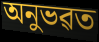
অনুভৱত